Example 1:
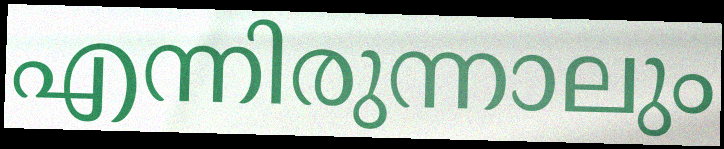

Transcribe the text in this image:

എന്നിരുന്നാലും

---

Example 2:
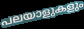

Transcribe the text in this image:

പലയാളുകളും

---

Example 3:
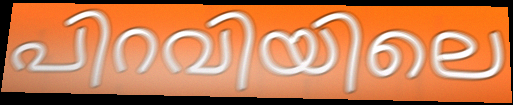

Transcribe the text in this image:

പിറവിയിലെ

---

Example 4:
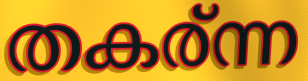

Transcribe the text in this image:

തകര്ന്ന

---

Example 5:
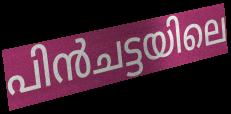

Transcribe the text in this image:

പിൻചട്ടയിലെ